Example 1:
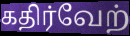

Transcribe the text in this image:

கதிர்வேற்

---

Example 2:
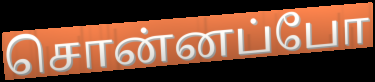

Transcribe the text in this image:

சொன்னப்போ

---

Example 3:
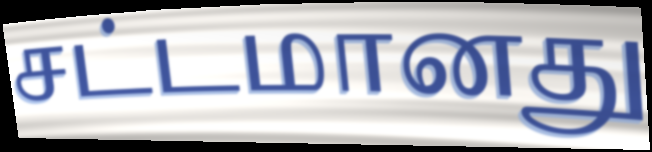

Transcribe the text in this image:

சட்டமானது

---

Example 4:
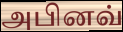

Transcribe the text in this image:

அபினவ்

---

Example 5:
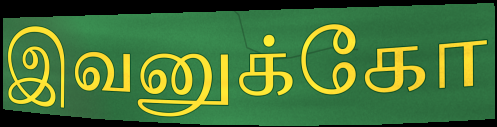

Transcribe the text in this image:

இவனுக்கோ